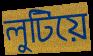
লুটিয়ে